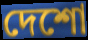
দেশো